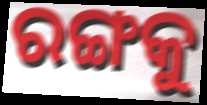
ରଙ୍ଗକୁ